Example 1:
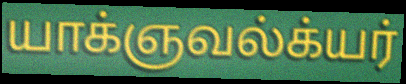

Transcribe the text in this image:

யாக்ஞவல்க்யர்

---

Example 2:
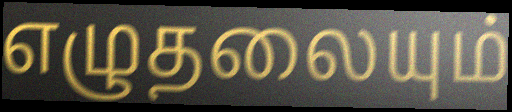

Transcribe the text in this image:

எழுதலையும்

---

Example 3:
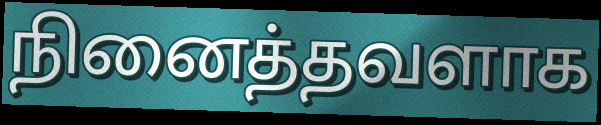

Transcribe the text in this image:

நினைத்தவளாக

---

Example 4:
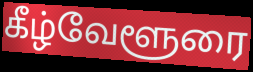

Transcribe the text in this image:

கீழ்வேளூரை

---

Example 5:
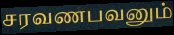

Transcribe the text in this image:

சரவணபவனும்